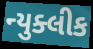
ન્યુક્લીક